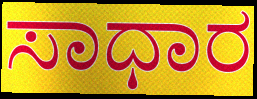
ಸಾಧಾರ